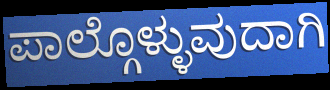
ಪಾಲ್ಗೊಳ್ಳುವುದಾಗಿ